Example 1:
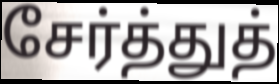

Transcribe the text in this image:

சேர்த்துத்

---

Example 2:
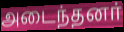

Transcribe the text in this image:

அடைந்தனர்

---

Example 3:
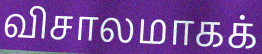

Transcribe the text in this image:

விசாலமாகக்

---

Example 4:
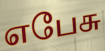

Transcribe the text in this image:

எபேசு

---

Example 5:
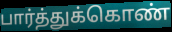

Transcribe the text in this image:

பார்த்துக்கொண்